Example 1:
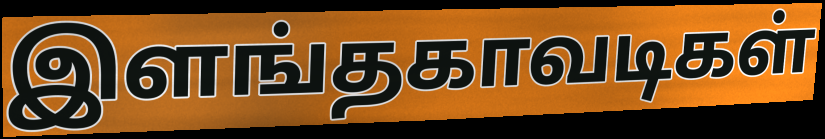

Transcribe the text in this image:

இளங்தகாவடிகள்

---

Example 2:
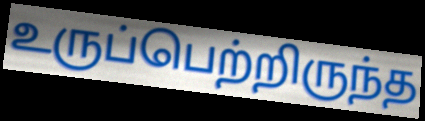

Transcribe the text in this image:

உருப்பெற்றிருந்த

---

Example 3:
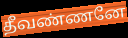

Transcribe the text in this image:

தீவண்ணனே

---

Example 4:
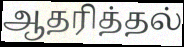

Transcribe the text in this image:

ஆதரித்தல்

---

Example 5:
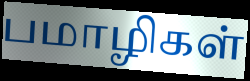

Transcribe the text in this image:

பமாழிகள்